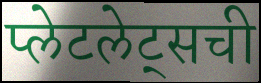
प्लेटलेट्‌सची